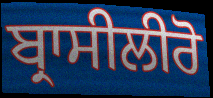
ਬ੍ਰਾਸੀਲੀਰੋ